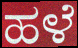
ಹಳೆ